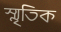
স্মৃতিক